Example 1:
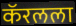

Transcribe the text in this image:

कॅरलला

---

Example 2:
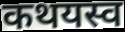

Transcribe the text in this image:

कथयस्व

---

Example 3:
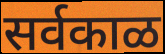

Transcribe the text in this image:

सर्वकाळ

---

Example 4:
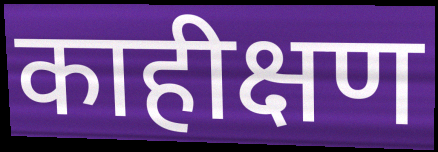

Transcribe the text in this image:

काहीक्षण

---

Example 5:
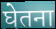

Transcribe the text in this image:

घेतना